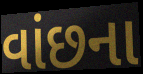
વાંછના